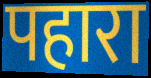
पहारा